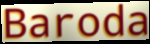
Baroda